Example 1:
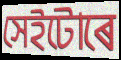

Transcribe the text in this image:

সেইটোৰে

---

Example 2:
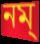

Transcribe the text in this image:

নম্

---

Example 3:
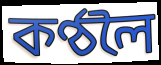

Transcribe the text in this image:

কণ্ঠলৈ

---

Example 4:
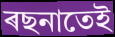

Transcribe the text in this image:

ৰছনাতেই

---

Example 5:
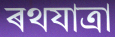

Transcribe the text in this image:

ৰথযাত্ৰা